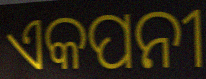
ଏକପନୀ